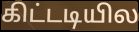
கிட்டடியில